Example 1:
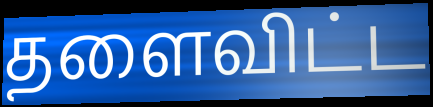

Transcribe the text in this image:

தளைவிட்ட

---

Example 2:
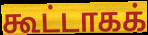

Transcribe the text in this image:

கூட்டாகக்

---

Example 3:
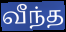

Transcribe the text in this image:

வீந்த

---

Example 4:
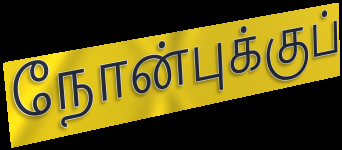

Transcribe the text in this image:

நோன்புக்குப்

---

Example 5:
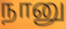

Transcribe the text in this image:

நானு